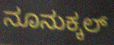
ನೂನುಕ್ಕಲ್